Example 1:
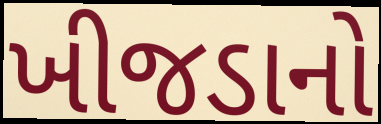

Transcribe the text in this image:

ખીજડાનો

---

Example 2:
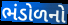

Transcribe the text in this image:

ભંડોળનો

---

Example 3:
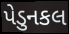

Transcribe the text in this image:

પેડુનકલ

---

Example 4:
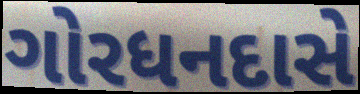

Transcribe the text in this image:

ગોરધનદાસે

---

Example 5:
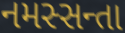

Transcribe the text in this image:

નમસ્સન્તા